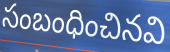
సంబంధించినవి